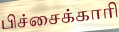
பிச்சைக்காரி